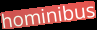
hominibus